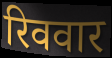
रिववार